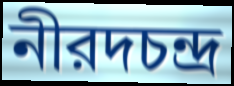
নীরদচন্দ্র